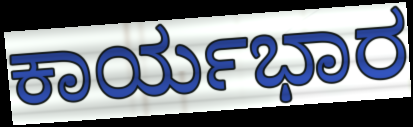
ಕಾರ್ಯಭಾರ